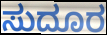
ಸುದೂರ